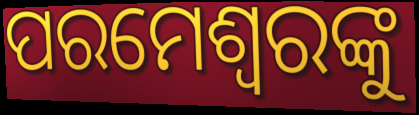
ପରମେଶ୍ୱରଙ୍କୁ